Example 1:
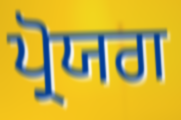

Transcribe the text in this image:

ਪ੍ਰੋਯਗ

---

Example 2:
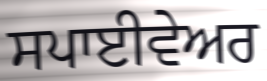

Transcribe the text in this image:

ਸਪਾਈਵੇਅਰ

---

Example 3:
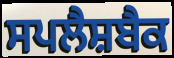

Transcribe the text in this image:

ਸਪਲੈਸ਼ਬੈਕ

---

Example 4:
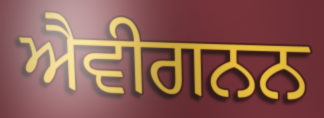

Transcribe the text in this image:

ਐਵੀਗਨਨ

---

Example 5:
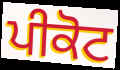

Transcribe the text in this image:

ਪੀਕੋਟ